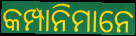
କମ୍ପାନିମାନେ